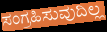
ಸಂಗ್ರಹಿಸುವುದಿಲ್ಲ